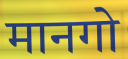
मानगो